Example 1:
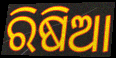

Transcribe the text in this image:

ରିଷିଆ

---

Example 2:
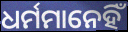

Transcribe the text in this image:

ଧର୍ମମାନେହିଁ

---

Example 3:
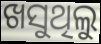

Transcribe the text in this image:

ଖସୁଥିଲୁ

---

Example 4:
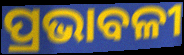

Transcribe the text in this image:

ପ୍ରଭାବଳୀ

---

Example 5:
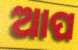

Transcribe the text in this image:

ଆପ